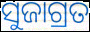
ସୁଜାଗ୍ରତ